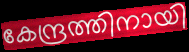
കേന്ദ്രത്തിനായി